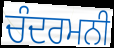
ਚੰਦਰਮਨੀ